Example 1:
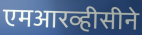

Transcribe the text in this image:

एमआरव्हीसीने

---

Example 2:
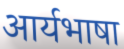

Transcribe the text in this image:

आर्यभाषा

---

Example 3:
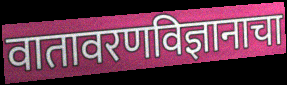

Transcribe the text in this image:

वातावरणविज्ञानाचा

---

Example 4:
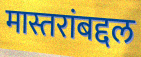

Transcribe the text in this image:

मास्तरांबद्दल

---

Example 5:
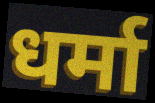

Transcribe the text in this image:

धर्मा